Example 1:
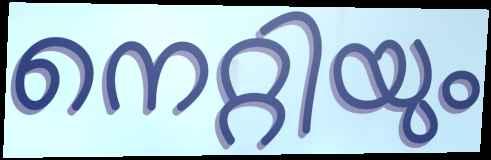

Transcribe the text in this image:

നെറ്റിയും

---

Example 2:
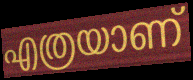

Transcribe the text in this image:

എത്രയാണ്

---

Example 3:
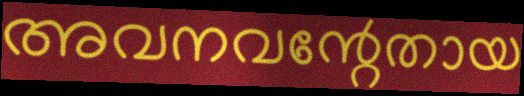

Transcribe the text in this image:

അവനവന്റേതായ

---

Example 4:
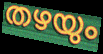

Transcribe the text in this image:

തഴയും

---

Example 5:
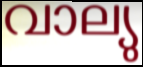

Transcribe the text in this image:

വാല്യു